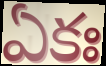
ఏకః